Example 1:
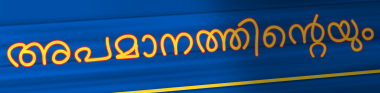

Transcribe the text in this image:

അപമാനത്തിന്റെയും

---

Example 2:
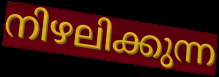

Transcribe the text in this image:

നിഴലിക്കുന്ന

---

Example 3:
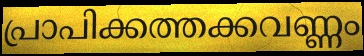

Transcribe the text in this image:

പ്രാപിക്കത്തക്കവണ്ണം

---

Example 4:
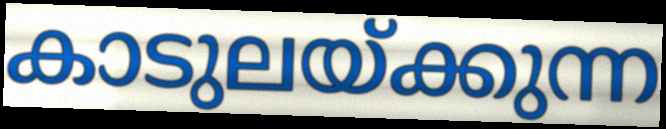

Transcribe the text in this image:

കാടുലയ്ക്കുന്ന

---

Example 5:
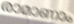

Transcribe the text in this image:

രാമാണാം